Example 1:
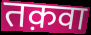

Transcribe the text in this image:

तक़वा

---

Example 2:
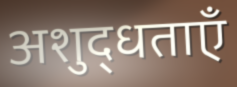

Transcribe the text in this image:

अशुद्धताएँ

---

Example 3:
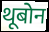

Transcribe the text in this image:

थूबोन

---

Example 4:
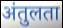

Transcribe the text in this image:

अंतुलता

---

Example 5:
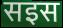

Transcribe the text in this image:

सइस